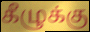
கீழுக்கு